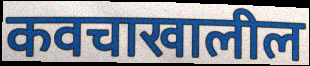
कवचाखालील